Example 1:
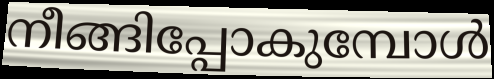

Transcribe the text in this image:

നീങ്ങിപ്പോകുമ്പോൾ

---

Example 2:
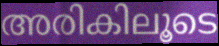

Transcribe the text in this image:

അരികിലൂടെ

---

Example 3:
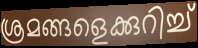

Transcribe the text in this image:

ശ്രമങ്ങളെക്കുറിച്ച്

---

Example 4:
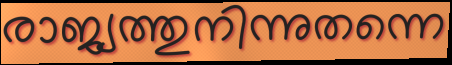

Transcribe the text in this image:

രാജ്യത്തുനിന്നുതന്നെ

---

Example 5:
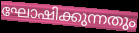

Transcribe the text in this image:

ഘോഷിക്കുന്നതും